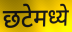
छटेमध्ये